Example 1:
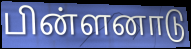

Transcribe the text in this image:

பின்ளனாடு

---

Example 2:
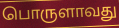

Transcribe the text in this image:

பொருளாவது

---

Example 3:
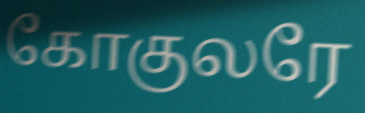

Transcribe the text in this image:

கோகுலரே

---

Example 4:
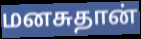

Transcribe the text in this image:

மனசுதான்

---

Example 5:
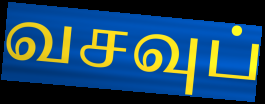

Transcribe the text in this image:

வசவுப்